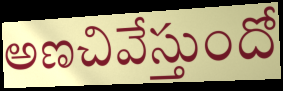
అణచివేస్తుందో